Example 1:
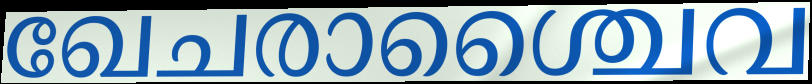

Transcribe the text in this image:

ഖേചരാശ്ചൈവ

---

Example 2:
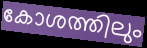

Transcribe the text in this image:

കോശത്തിലും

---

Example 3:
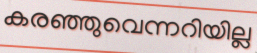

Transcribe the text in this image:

കരഞ്ഞുവെന്നറിയില്ല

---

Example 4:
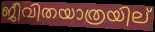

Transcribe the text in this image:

ജീവിതയാത്രയില്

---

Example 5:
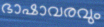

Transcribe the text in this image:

ഭാഷാവരവും